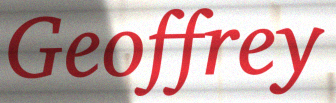
Geoffrey